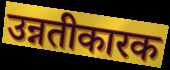
उन्नतीकारक